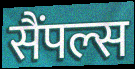
सैंपल्‍स